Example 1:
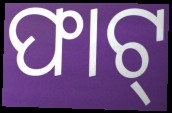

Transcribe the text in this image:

ଫାଟ୍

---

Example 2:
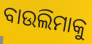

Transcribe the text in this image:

ବାଉଲିମାକୁ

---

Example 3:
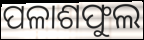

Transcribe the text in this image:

ପଳାଶଫୁଲ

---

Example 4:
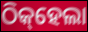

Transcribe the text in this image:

ଠିକ୍‌ହେଲା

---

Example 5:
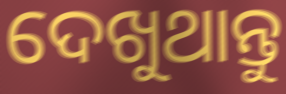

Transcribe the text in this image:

ଦେଖୁଥାନ୍ତୁ